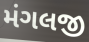
મંગલજી